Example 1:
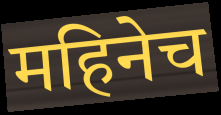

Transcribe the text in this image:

महिनेच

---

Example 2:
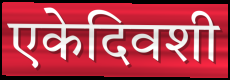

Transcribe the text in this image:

एकेदिवशी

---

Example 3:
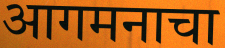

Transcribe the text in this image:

आगमनाचा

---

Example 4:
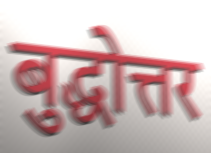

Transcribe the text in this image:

बुद्धोत्तर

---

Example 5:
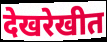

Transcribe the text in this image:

देखरेखीत